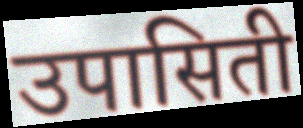
उपासिती